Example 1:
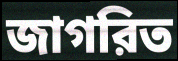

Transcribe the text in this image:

জাগরিত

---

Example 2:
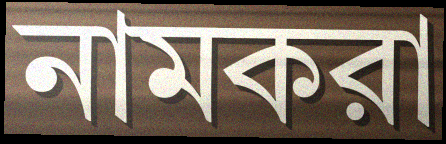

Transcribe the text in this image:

নামকরা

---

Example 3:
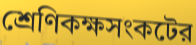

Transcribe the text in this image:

শ্রেণিকক্ষসংকটের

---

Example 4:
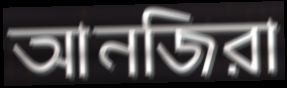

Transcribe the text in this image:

আনজিরা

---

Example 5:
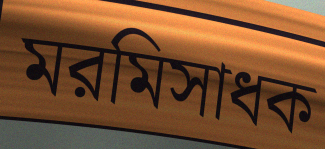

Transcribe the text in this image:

মরমিসাধক